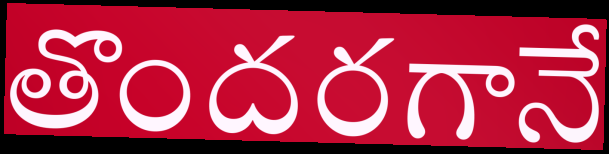
తొందరగానే